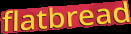
flatbread